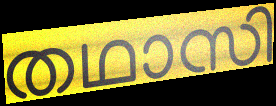
തഥാസി